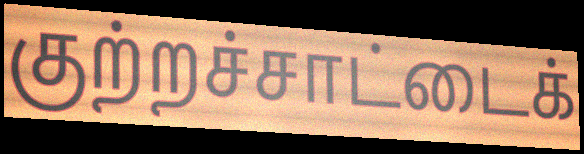
குற்றச்சாட்டைக்